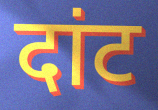
दांट